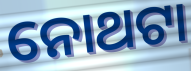
ନୋଥଟା